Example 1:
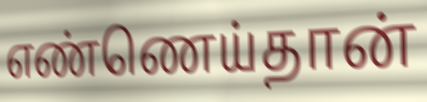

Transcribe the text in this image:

எண்ணெய்தான்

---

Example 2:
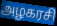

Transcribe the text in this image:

அழகரசி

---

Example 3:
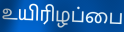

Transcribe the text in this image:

உயிரிழப்பை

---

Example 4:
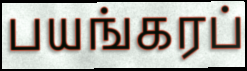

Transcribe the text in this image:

பயங்கரப்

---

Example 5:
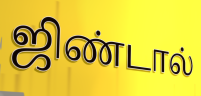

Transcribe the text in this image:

ஜிண்டால்